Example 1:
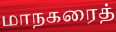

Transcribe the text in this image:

மாநகரைத்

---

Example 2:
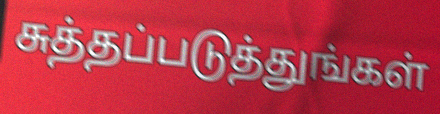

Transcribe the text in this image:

சுத்தப்படுத்துங்கள்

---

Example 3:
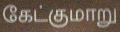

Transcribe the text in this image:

கேட்குமாறு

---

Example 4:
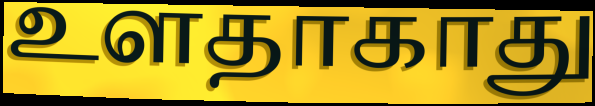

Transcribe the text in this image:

உளதாகாது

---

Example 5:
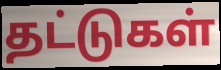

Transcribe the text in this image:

தட்டுகள்